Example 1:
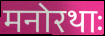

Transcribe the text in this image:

मनोरथाः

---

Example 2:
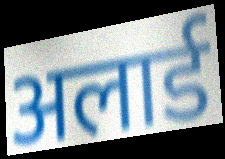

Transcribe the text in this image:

अलार्ड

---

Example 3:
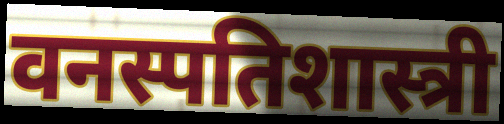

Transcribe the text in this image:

वनस्पतिशास्त्री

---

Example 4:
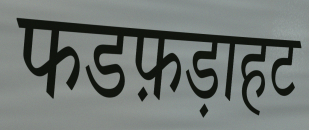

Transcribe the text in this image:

फडफ़ड़ाहट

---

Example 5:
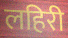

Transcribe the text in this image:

लहिरी